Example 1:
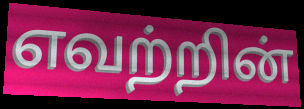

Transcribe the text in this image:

எவற்றின்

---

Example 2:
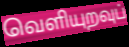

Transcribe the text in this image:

வெளியுறவுப்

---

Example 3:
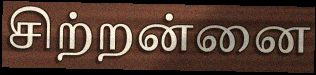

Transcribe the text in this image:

சிற்றன்னை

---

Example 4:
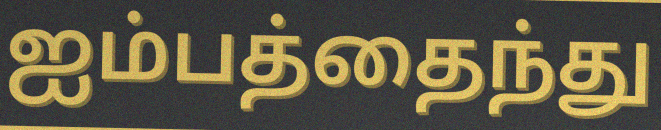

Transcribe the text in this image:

ஐம்பத்தைந்து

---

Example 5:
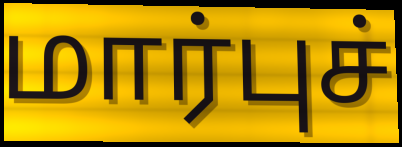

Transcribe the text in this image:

மார்புச்